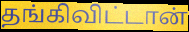
தங்கிவிட்டான்